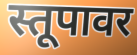
स्तूपावर